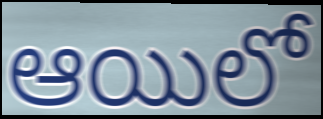
ఆయిలో